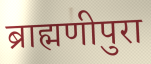
ब्राह्मणीपुरा